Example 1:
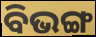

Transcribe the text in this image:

ବିଭଙ୍ଗ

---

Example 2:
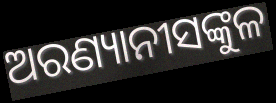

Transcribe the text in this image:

ଅରଣ୍ୟାନୀସଙ୍କୁଳ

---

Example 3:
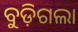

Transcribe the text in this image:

ବୁଡ଼ିଗଲା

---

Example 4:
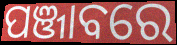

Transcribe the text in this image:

ପଞ୍ଜାବରେ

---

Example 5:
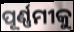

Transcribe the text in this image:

ପୂର୍ଣ୍ଣମୀକୁ